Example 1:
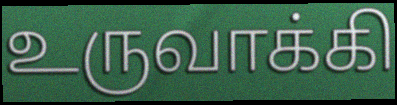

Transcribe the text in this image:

உருவாக்கி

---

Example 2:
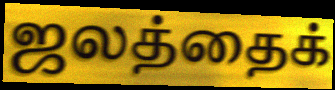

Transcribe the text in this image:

ஜலத்தைக்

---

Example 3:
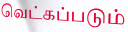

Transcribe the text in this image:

வெட்கப்படும்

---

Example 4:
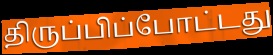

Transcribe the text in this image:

திருப்பிப்போட்டது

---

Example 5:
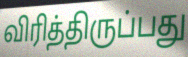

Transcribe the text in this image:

விரித்திருப்பது